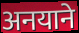
अनयाने